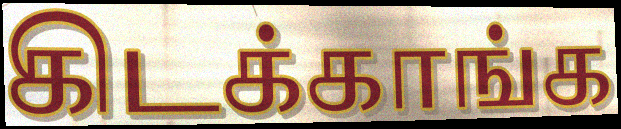
கிடக்காங்க